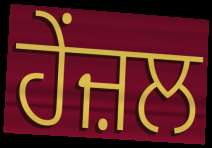
ਹੇਂਜ਼ਲ